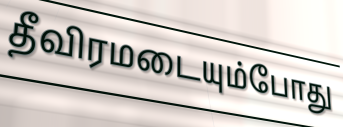
தீவிரமடையும்போது